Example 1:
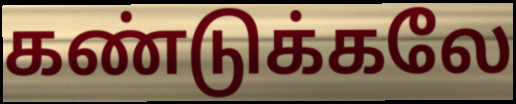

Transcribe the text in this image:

கண்டுக்கலே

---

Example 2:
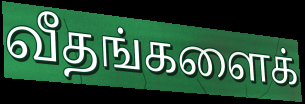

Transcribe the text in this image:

வீதங்களைக்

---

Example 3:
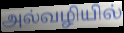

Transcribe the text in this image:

அல்வழியில்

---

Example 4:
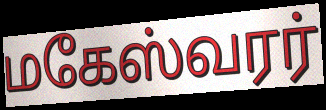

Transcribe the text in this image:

மகேஸ்வரர்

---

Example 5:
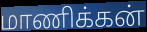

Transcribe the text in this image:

மாணிக்கன்